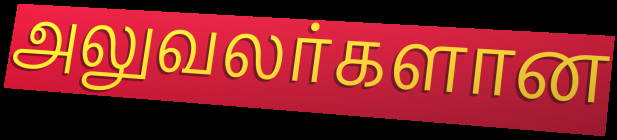
அலுவலர்களான